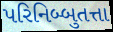
પરિનિબ્બુતત્તા